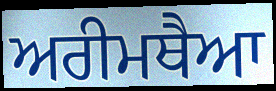
ਅਰੀਮਥੈਆ